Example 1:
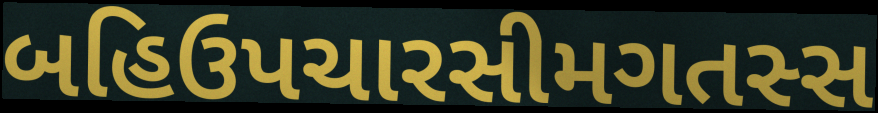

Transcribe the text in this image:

બહિઉપચારસીમગતસ્સ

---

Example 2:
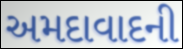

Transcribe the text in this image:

અમદાવાદની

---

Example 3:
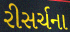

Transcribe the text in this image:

રીસર્ચના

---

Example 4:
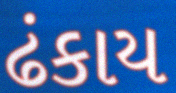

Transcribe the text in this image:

ઢંકાય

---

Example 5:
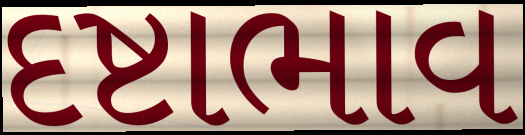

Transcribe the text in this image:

દષ્ટાભાવ